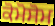
ਕੋਮੋਸੋਮ